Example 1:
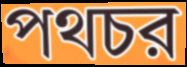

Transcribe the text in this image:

পথচর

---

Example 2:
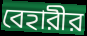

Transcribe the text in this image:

বেহারীর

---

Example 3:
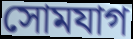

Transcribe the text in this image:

সোমযাগ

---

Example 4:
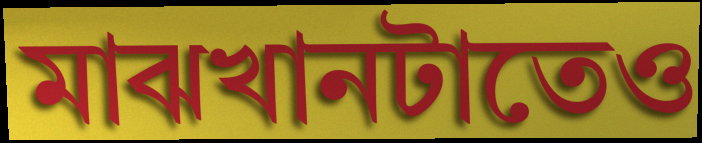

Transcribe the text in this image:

মাঝখানটাতেও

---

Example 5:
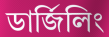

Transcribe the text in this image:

ডার্জিলিং